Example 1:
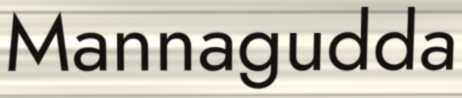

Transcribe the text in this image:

Mannagudda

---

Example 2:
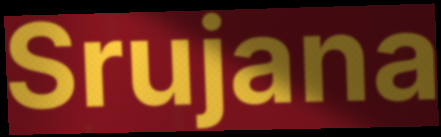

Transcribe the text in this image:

Srujana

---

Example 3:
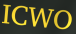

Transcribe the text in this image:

ICWO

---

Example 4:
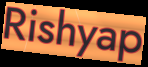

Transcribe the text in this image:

Rishyap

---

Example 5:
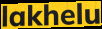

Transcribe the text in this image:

lakhelu